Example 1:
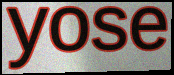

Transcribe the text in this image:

yose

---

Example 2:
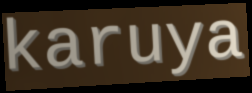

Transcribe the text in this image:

karuya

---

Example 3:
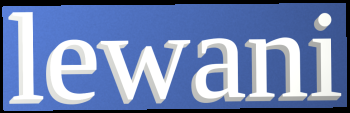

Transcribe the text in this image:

lewani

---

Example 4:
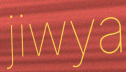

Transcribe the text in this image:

jiwya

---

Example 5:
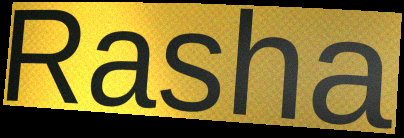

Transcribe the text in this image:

Rasha